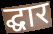
द्घार